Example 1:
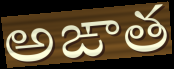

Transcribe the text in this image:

అఙాత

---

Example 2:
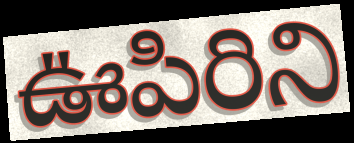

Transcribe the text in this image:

ఊపిరిని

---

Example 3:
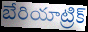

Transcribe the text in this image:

బేరియాట్రిక్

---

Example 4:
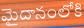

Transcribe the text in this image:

మైదానంలోకి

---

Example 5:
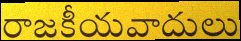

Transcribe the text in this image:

రాజకీయవాదులు